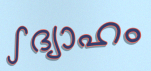
ഽദ്യാഹം